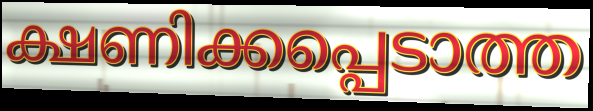
ക്ഷണിക്കപ്പെടാത്ത